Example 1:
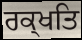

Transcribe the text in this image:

ਰਕ੍ਖਤਿ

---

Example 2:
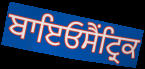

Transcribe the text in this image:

ਬਾਇਓਸੈਂਟ੍ਰਿਕ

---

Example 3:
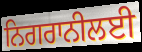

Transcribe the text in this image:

ਨਿਗਰਾਨੀਲਈ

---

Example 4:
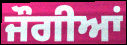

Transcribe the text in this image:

ਜੌਗੀਆਂ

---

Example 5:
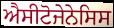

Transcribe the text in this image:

ਐਸੀਟੋਜੇਨੇਸਿਸ